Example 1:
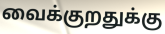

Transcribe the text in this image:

வைக்குறதுக்கு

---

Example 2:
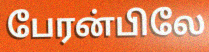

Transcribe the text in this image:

பேரன்பிலே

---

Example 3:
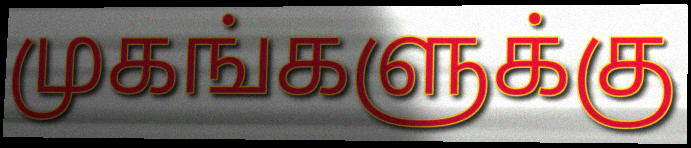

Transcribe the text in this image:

முகங்களுக்கு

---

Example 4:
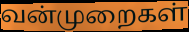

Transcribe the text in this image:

வன்முறைகள்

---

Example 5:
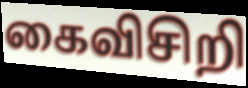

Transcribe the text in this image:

கைவிசிறி